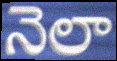
నెలా